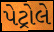
પેટ્રોલે